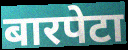
बारपेटा